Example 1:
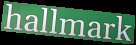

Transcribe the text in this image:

hallmark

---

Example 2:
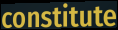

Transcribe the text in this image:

constitute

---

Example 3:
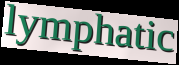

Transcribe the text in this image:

lymphatic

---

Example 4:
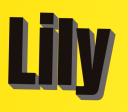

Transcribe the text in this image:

Lily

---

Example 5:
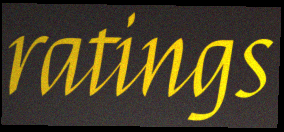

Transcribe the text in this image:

ratings